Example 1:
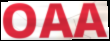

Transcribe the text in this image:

OAA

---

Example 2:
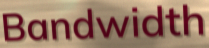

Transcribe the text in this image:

Bandwidth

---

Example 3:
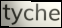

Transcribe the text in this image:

tyche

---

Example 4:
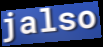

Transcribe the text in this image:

jalso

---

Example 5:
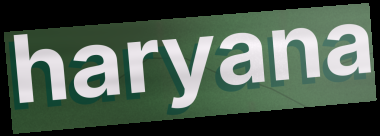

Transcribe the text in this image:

haryana